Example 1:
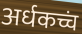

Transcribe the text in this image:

अर्धकच्चं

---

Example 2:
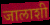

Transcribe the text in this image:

जालाशी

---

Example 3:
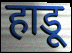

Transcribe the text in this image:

हाडू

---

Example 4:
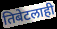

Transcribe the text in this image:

तिबेटलाही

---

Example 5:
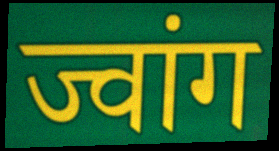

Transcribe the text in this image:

ज्वांग